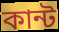
কান্ট